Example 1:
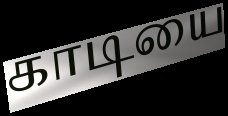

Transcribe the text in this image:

காடியை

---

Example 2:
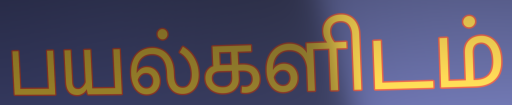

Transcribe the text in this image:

பயல்களிடம்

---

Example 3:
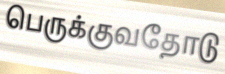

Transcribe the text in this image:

பெருக்குவதோடு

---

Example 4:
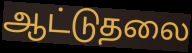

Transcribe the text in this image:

ஆட்டுதலை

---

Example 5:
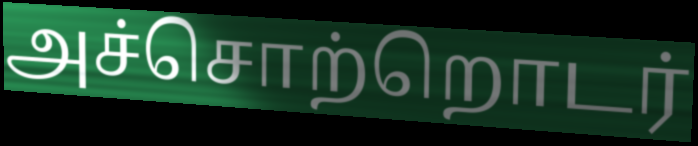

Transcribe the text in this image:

அச்சொற்றொடர்